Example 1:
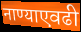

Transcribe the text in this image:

नाण्याएवढी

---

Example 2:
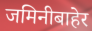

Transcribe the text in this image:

जमिनीबाहेर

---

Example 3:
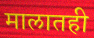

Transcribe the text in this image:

मालातही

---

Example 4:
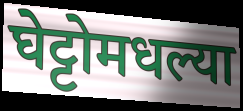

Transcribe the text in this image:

घेट्टोमधल्या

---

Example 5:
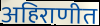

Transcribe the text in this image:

अहिराणीत